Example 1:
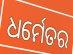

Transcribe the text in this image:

ଧର୍ମେତର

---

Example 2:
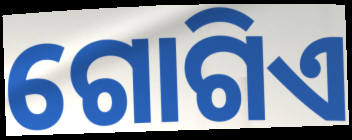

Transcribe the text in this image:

ଗୋଗିଏ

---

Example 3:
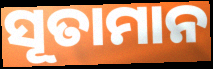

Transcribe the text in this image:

ସୂତାମାନ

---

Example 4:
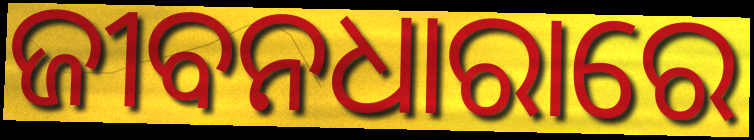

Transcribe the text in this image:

ଜୀବନଧାରାରେ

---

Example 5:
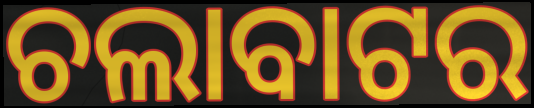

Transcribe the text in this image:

ଚଲାବାଟର